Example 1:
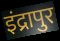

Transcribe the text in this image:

इंद्रापुर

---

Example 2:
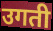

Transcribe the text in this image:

उगती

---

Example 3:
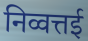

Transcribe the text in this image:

निव्वत्तई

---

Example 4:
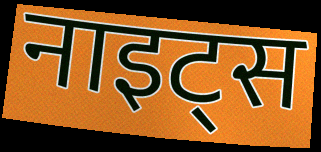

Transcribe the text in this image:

नाइट्स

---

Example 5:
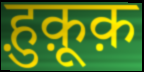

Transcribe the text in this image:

ह़ुक़ूक़